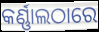
କର୍ଣ୍ଣାଲଠାରେ